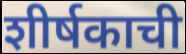
शीर्षकाची